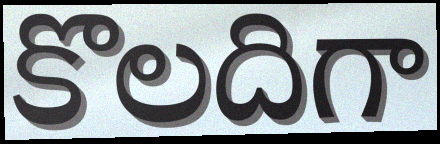
కొలదిగా